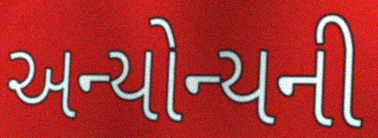
અન્યોન્યની